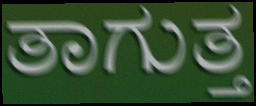
ತಾಗುತ್ತ